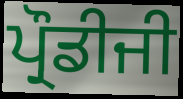
ਪ੍ਰੌਡੀਜੀ